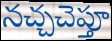
నచ్చచెప్తూ